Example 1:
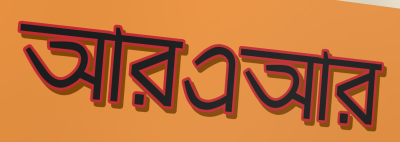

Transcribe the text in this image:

আরএআর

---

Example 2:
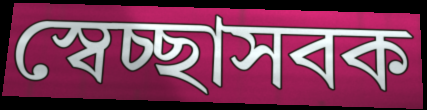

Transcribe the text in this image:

স্বেচ্ছাসবক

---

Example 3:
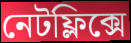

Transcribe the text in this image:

নেটফ্লিক্সে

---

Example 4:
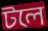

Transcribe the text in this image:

টলে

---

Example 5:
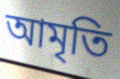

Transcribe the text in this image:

আমৃতি